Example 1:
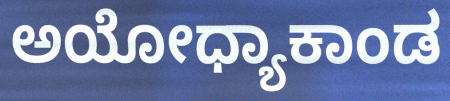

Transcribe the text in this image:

ಅಯೋಧ್ಯಾಕಾಂಡ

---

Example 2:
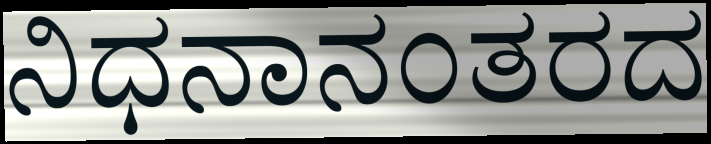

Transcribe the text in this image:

ನಿಧನಾನಂತರದ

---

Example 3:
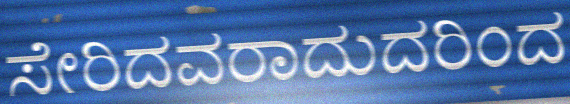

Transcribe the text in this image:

ಸೇರಿದವರಾದುದರಿಂದ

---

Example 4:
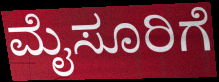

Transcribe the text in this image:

ಮೈಸೂರಿಗೆ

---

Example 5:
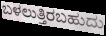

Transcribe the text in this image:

ಬಳಲುತ್ತಿರಬಹುದು